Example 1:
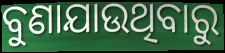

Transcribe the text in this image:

ବୁଣାଯାଉଥିବାରୁ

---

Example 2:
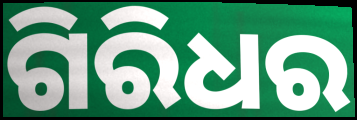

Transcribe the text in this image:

ଗିରିଧର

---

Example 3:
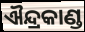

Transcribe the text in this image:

ଐନ୍ଦ୍ରକାଣ୍ଡ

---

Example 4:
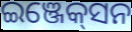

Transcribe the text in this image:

ଇଞ୍ଜେକ୍‌ସନ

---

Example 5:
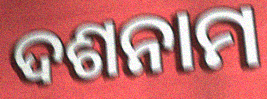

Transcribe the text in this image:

ଦଶନାମ